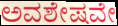
ಅವಶೇಷವೇ